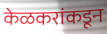
केळकरांकडून